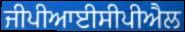
ਜੀਪੀਆਈਸੀਪੀਐਲ